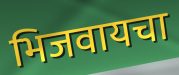
भिजवायचा